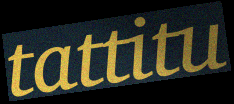
tattitu